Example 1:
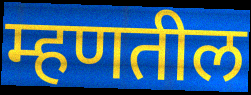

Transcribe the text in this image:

म्हणतील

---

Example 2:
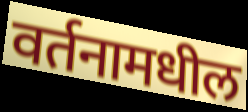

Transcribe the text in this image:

वर्तनामधील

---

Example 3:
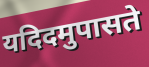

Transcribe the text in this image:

यदिदमुपासते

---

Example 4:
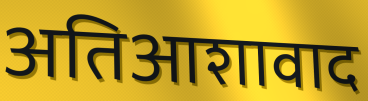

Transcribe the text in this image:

अतिआशावाद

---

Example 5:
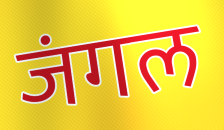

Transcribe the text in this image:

जंगल